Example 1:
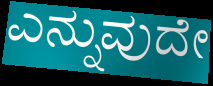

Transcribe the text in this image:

ಎನ್ನುವುದೇ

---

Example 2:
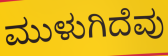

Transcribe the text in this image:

ಮುಳುಗಿದೆವು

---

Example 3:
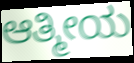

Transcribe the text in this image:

ಆತ್ಮೀಯ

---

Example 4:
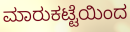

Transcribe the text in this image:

ಮಾರುಕಟ್ಟೆಯಿಂದ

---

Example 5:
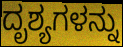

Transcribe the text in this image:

ದೃಶ್ಯಗಳನ್ನು